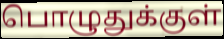
பொழுதுக்குள்